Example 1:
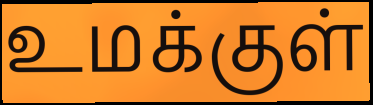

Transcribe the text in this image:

உமக்குள்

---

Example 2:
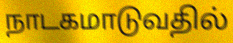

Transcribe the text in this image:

நாடகமாடுவதில்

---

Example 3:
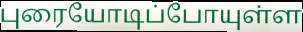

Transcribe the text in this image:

புரையோடிப்போயுள்ள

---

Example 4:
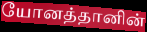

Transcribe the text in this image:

யோனத்தானின்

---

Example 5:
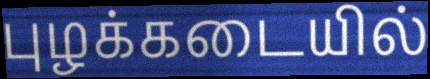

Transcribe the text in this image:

புழக்கடையில்